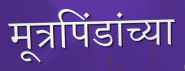
मूत्रपिंडांच्या